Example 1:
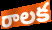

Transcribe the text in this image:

రాలక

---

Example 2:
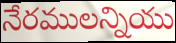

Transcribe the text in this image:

నేరములన్నియు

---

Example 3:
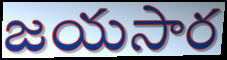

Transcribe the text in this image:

జయసార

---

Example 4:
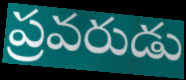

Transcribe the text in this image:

ప్రవరుడు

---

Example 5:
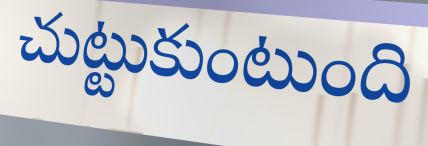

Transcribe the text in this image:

చుట్టుకుంటుంది